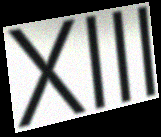
XIII